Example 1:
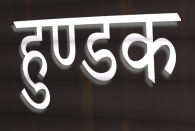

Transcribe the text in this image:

हुण्डक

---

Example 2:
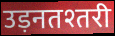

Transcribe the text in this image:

उड़नतश्तरी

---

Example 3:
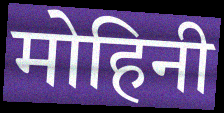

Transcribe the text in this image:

मोहिनी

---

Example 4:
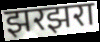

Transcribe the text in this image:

झरझरा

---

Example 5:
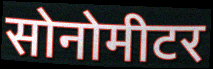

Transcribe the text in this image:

सोनोमीटर